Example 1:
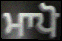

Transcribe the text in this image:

ਮਾਪੋ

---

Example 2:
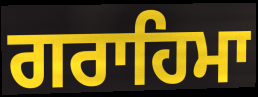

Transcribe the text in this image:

ਗਰਾਹਿਮਾ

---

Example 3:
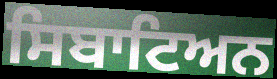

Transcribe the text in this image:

ਸਿਬਾਟਿਅਨ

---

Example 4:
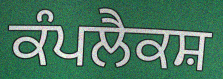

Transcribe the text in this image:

ਕੰਪਲੈਕਸ਼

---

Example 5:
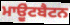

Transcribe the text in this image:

ਮਾਉੂਂਟਬੈਟਨ